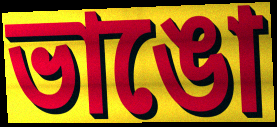
ভাঙো